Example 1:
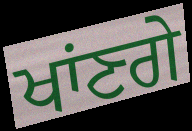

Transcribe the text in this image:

ਖਾਂਣਗੇ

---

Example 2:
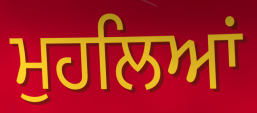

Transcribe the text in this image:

ਮੁਹਲਿਆਂ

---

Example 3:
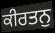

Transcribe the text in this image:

ਕੀਰਤਨੁ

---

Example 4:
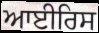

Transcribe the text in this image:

ਆਈਰਿਸ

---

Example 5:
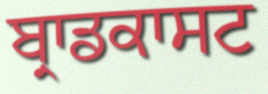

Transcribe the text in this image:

ਬ੍ਰਾਡਕਾਸਟ